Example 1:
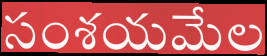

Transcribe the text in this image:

సంశయమేల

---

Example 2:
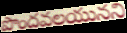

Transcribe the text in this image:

పొందవలయునని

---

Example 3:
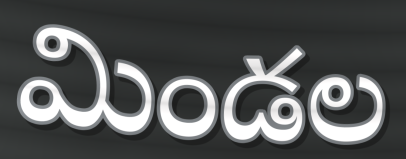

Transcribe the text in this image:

మిండల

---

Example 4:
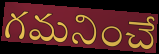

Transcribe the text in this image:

గమనించే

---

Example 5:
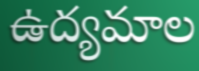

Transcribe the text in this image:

ఉద్యమాల